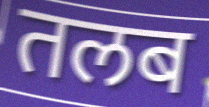
तलब